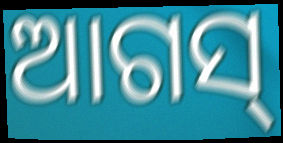
ଆଗସ୍